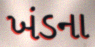
ખંડના